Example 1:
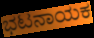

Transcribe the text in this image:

ಭಟನಾಯಕ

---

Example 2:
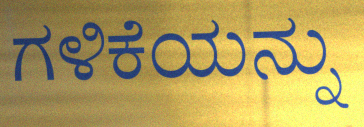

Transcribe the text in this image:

ಗಳಿಕೆಯನ್ನು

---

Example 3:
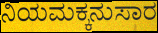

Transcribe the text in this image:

ನಿಯಮಕ್ಕನುಸಾರ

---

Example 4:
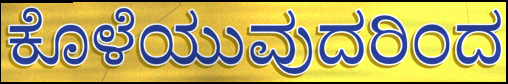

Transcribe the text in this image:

ಕೊಳೆಯುವುದರಿಂದ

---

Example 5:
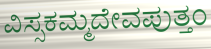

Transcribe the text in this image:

ವಿಸ್ಸಕಮ್ಮದೇವಪುತ್ತಂ